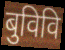
बुविवि